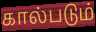
கால்படும்